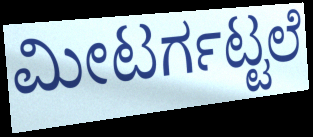
ಮೀಟರ್ಗಟ್ಟಲೆ